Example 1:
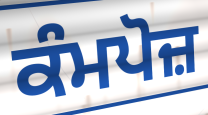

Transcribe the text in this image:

ਕੰਮਪੋਜ਼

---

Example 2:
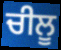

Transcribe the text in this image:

ਚੀਲੂ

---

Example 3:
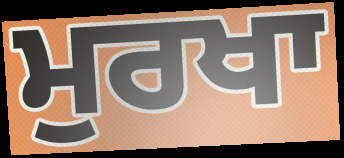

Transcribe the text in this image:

ਮੁਰਖਾ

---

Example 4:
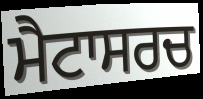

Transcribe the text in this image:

ਮੈਟਾਸਰਚ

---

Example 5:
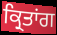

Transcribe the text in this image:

ਕ੍ਰਿਤਾਂਗ